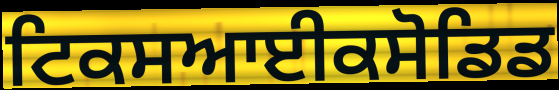
ਟਿਕਸਆਈਕਸੋਡਿਡ